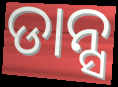
ଡାନ୍ସ